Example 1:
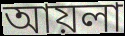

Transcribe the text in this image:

আয়লা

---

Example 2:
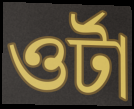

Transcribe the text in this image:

ওর্টা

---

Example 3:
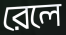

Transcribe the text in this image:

রেলে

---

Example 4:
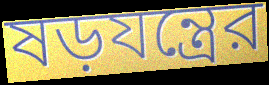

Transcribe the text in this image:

ষড়যন্ত্রের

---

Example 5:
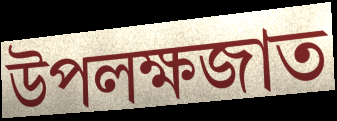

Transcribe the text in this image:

উপলক্ষজাত